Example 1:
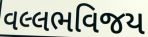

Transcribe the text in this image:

વલ્લભવિજય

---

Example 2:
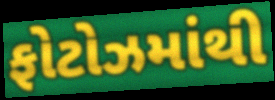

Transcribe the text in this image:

ફોટોઝમાંથી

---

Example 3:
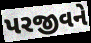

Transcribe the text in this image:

પરજીવને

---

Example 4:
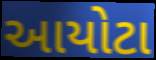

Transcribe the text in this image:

આયોટા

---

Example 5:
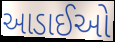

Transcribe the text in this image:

આડાઈઓ